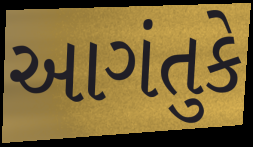
આગંતુકે